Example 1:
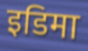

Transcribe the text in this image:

इडिमा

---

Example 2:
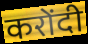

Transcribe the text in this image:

करोंदी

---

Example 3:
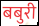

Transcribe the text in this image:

बबुरी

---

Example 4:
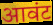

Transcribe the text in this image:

आवंट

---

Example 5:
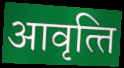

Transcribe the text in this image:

आवृत्‍ति